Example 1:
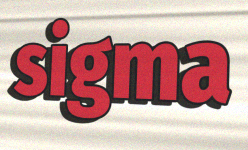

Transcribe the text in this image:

sigma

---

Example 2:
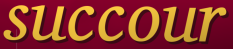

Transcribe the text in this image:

succour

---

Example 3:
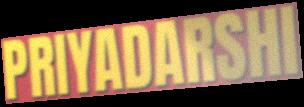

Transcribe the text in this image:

PRIYADARSHI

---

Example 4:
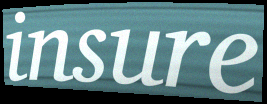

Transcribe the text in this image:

insure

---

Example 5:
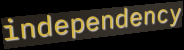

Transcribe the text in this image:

independency